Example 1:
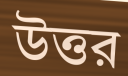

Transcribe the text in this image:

উত্তর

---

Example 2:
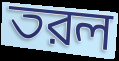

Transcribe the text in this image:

তরল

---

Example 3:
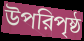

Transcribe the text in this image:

উপরিপৃষ্ঠ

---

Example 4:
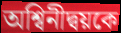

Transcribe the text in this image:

অশ্বিনীদ্বয়কে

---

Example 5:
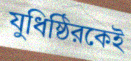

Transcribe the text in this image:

যুধিষ্ঠিরকেই